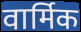
वार्मिक